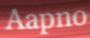
Aapno